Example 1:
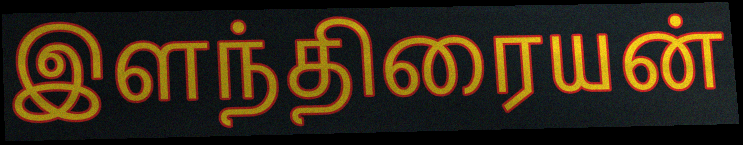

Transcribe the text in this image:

இளந்திரையன்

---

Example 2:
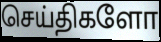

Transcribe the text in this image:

செய்திகளோ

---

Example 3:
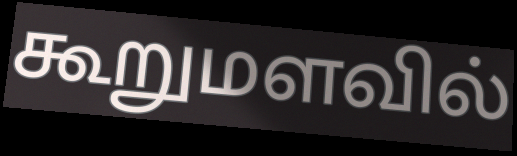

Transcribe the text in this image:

கூறுமளவில்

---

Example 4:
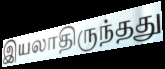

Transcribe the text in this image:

இயலாதிருந்தது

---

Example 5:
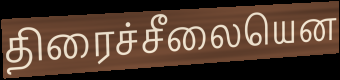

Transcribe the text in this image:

திரைச்சீலையென